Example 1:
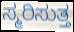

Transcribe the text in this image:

ಸ್ಮರಿಸುತ್ತ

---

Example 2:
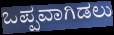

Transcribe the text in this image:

ಒಪ್ಪವಾಗಿಡಲು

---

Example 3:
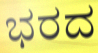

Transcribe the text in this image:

ಭರದ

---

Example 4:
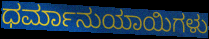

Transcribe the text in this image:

ಧರ್ಮಾನುಯಾಯಿಗಳು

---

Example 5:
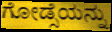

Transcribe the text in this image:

ಗೋಡ್ಸೆಯನ್ನು